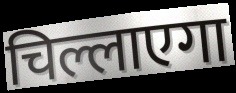
चिल्लाएगा